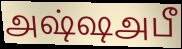
அஷ்ஷஅபீ